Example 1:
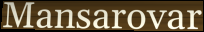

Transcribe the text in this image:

Mansarovar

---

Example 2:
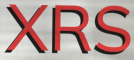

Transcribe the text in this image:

XRS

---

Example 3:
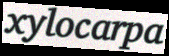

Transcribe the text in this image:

xylocarpa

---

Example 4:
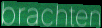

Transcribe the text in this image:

brachten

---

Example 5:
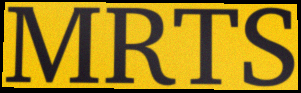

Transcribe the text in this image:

MRTS